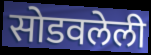
सोडवलेली